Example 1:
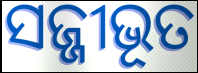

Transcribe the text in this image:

ସଜ୍ଜୀଭୂତ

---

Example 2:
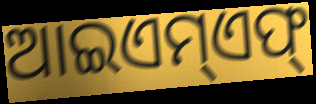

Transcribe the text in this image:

ଆଇଏମ୍ଏଫ୍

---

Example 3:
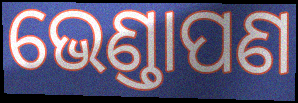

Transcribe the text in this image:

ଭେଣ୍ଡାପଣ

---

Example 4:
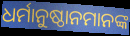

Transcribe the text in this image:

ଧର୍ମାନୁଷ୍ଠାନମାନଙ୍କ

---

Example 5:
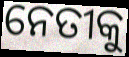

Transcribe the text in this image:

ନେତୀକୁ